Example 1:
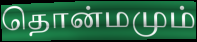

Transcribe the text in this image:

தொன்மமும்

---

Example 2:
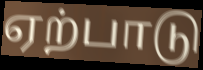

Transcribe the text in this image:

ஏற்பாடு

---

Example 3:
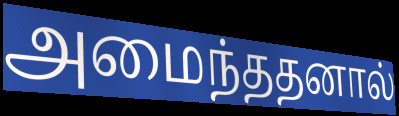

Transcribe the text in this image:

அமைந்ததனால்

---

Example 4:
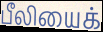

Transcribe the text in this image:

பீலியைக்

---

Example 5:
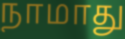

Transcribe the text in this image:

நாமாது